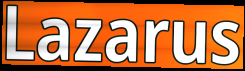
Lazarus